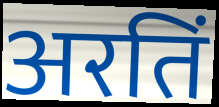
अरतिं